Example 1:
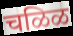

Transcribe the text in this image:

चळिळ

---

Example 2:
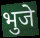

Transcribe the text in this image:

भुजे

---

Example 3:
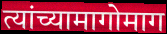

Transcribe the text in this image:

त्यांच्यामागोमाग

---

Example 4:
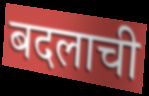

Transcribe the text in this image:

बदलाची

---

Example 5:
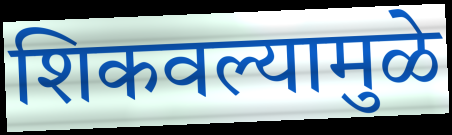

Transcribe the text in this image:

शिकवल्यामुळे